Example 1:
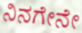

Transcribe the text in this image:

ನಿನಗೇನೇ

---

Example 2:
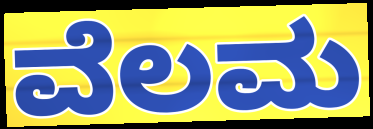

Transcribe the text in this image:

ವೆಲಮ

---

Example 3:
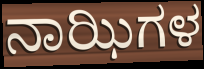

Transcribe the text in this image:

ನಾಝಿಗಳ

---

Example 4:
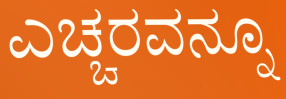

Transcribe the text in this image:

ಎಚ್ಚರವನ್ನೂ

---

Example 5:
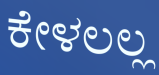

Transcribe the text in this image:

ಕೇಳಲಲ್ಲ